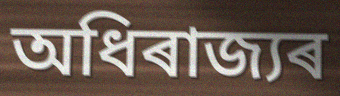
অধিৰাজ্যৰ